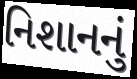
નિશાનનું